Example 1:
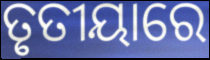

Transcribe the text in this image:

ତୃତୀୟାରେ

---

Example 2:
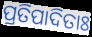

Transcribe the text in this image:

ପ୍ରତିପାଦିତାଃ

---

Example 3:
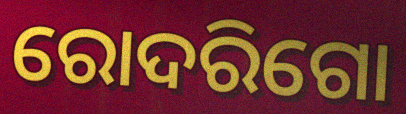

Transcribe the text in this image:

ରୋଦରିଗୋ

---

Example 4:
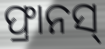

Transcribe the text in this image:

ଫ୍ରାନସ୍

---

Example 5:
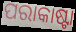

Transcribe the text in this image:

ପରାକାଷ୍ଟା